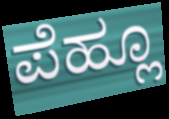
ಪೆಹ್ಲೂ